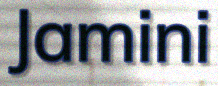
Jamini